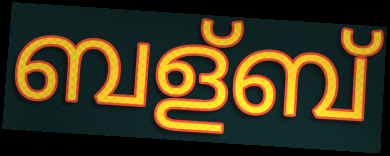
ബള്ബ്